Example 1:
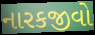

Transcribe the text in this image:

નારકજીવો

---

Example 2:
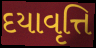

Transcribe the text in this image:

દયાવૃત્તિ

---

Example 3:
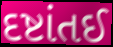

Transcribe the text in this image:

દષ્ટાંતઈ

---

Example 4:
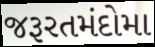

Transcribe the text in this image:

જરૂરતમંદોમા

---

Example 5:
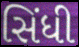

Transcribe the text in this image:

સિંધી